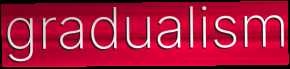
gradualism